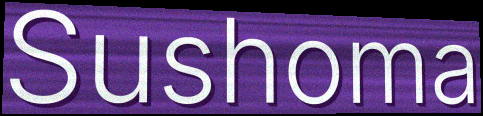
Sushoma